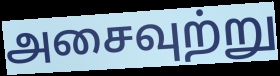
அசைவுற்று